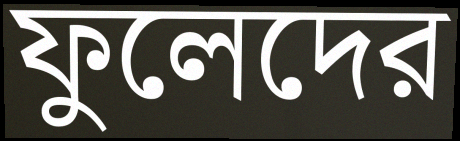
ফুলেদের